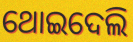
ଥୋଇଦେଲି